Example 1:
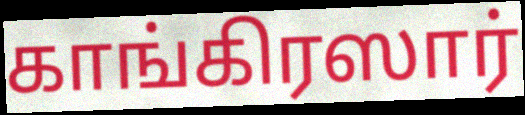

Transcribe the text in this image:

காங்கிரஸார்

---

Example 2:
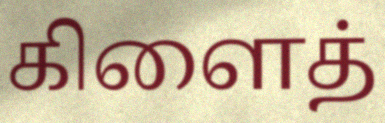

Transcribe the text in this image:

கிளைத்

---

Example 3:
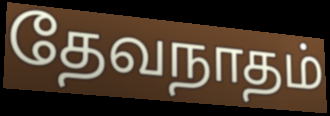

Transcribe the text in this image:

தேவநாதம்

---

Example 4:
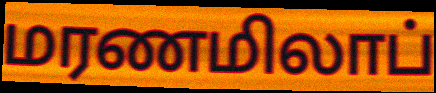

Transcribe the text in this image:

மரணமிலாப்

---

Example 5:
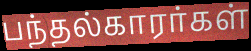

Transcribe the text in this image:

பந்தல்காரர்கள்